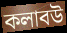
কলাবউ